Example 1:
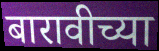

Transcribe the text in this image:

बारावीच्या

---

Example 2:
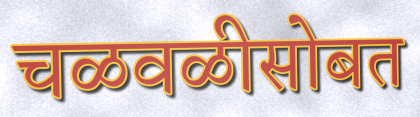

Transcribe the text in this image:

चळवळीसोबत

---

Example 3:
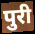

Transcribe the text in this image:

पुरी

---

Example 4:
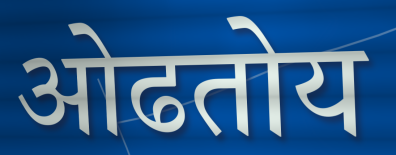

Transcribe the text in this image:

ओढतोय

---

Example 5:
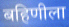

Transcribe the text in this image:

बहिणीला